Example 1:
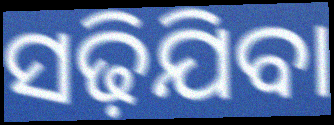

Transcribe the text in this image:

ସଢ଼ିଯିବା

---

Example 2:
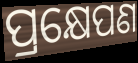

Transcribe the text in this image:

ପ୍ରକ୍ଷେପଣ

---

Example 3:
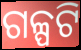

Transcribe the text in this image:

ଗଳ୍ପଟି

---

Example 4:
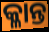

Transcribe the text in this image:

କ୍ଳାନ୍ତ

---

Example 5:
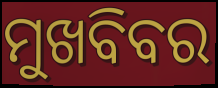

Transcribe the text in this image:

ମୁଖବିବର